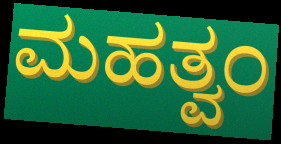
ಮಹತ್ವಂ